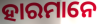
ହାରମାନେ